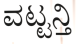
ವಟ್ಟನ್ತಿ